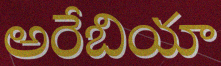
అరేబియా